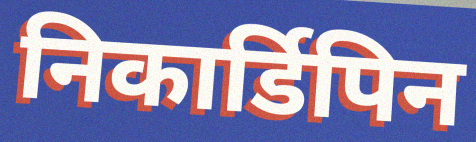
निकार्डिपिन